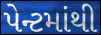
પેન્ટમાંથી